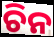
ଚିନ